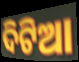
ଦିଟିଆ